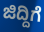
ಜಿದ್ದಿಗೆ